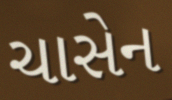
ચાસેન